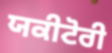
ਯਕੀਟੋਰੀ